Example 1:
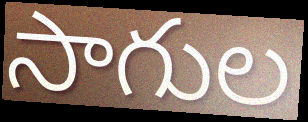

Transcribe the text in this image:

సాగుల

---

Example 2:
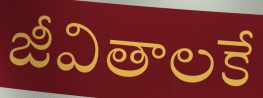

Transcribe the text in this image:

జీవితాలకే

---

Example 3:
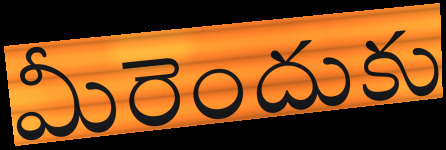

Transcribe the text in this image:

మీరెందుకు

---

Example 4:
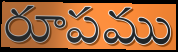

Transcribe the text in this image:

రూపము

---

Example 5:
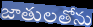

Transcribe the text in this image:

జాతులతోను